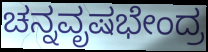
ಚನ್ನವೃಷಭೇಂದ್ರ